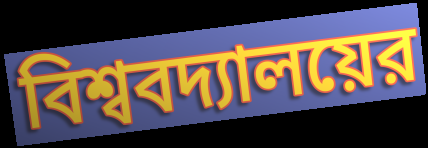
বিশ্ববদ্যালয়ের